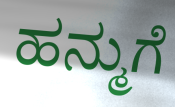
ಹನ್ಮುಗೆ